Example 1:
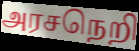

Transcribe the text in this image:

அரசநெறி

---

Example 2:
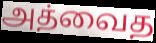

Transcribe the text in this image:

அத்வைத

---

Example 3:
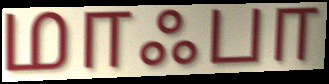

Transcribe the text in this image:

மாஃபா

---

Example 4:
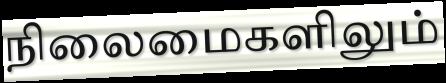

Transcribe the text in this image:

நிலைமைகளிலும்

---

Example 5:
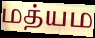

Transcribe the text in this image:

மத்யம